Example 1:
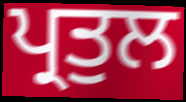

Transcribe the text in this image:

ਪ੍ਰਤੁਲ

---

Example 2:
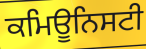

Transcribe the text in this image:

ਕਮਿਊਨਿਸਟੀ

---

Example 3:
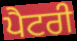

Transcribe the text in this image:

ਪੈਟਰੀ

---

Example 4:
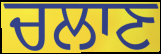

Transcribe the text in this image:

ਚਲਾਣ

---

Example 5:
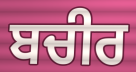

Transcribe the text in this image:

ਬਚੀਰ